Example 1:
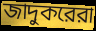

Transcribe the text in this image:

জাদুকরেরা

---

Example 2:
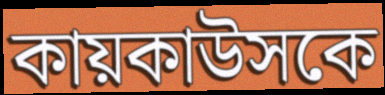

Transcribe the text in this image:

কায়কাউসকে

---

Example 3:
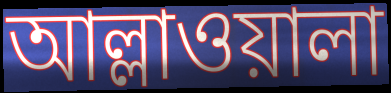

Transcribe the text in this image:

আল্লাওয়ালা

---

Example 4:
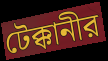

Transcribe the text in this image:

টেক্কানীর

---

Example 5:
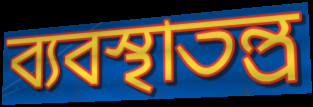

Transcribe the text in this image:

ব্যবস্থাতন্ত্র